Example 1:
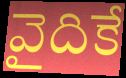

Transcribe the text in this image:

వైదికే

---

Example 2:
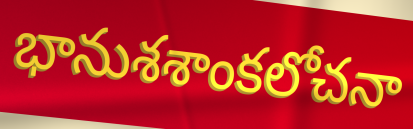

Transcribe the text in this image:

భానుశశాంకలోచనా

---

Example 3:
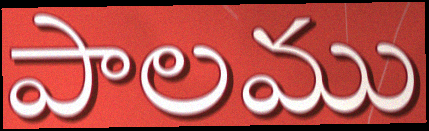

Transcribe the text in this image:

పాలము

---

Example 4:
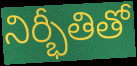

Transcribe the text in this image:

నిర్భీతితో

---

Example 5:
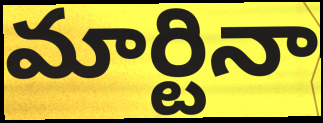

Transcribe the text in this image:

మార్టినా